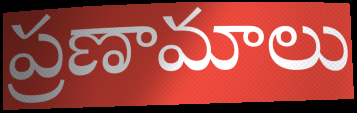
ప్రణామాలు